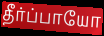
தீர்ப்பாயோ